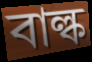
বাল্ক